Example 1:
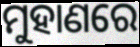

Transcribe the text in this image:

ମୁହାଣରେ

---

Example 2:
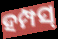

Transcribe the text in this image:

ହମ୍ପସ୍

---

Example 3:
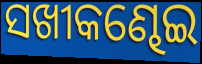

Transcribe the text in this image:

ସଖୀକଣ୍ଢେଇ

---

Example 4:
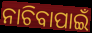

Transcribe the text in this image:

ନାଚିବାପାଇଁ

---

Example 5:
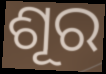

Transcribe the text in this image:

ଶୂର